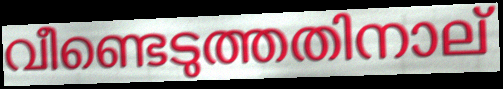
വീണ്ടെടുത്തതിനാല്